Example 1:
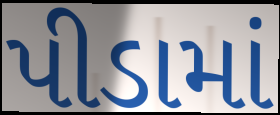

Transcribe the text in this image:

પીડામાં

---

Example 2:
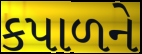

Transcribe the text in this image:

કપાળને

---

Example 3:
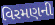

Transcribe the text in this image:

વિરમણની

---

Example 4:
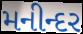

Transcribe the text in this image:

મનીન્દર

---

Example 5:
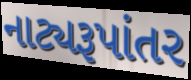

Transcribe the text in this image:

નાટ્યરૂપાંતર